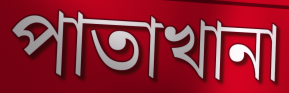
পাতাখানা